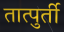
तात्पुर्ती